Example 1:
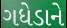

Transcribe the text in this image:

ગધેડાને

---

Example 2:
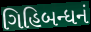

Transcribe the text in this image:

ગિહિબન્ધનં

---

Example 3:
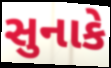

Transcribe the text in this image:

સુનાકે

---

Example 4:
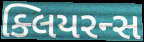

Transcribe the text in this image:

ક્લિયરન્સ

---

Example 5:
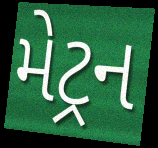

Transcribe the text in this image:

મેટ્રન